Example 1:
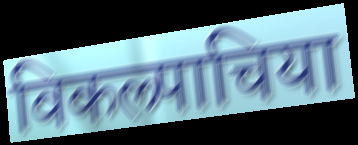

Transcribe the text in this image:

विकल्पाचिया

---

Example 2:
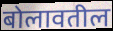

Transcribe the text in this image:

बोलावतील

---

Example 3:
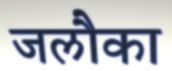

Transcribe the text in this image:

जलौका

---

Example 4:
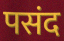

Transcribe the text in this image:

पसंद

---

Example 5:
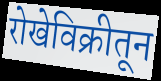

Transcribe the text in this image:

रोखेविक्रीतून